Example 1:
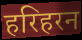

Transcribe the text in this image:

हरिहरन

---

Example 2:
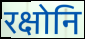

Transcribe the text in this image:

रक्षोनि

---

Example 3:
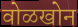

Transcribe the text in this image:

वोळखोन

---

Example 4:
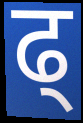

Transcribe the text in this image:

ढ्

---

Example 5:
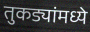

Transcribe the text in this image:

तुकड्यांमध्ये